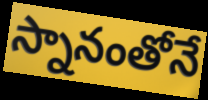
స్నానంతోనే